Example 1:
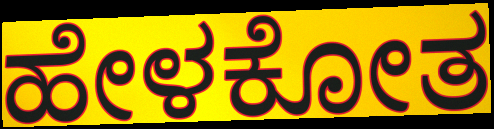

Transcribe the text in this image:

ಹೇಳಕೋತ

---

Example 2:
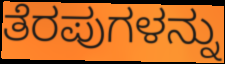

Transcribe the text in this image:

ತೆರಪುಗಳನ್ನು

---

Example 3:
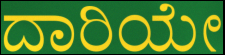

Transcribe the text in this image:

ದಾರಿಯೇ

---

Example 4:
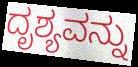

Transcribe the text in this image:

ದೃಶ್ಯವನ್ನು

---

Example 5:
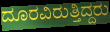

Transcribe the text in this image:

ದೂರವಿರುತ್ತಿದ್ದರು